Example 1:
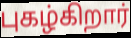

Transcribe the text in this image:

புகழ்கிறார்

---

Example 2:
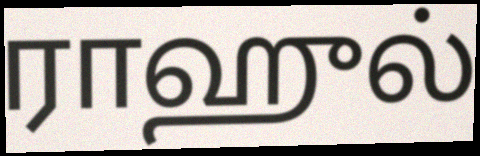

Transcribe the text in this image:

ராஹுல்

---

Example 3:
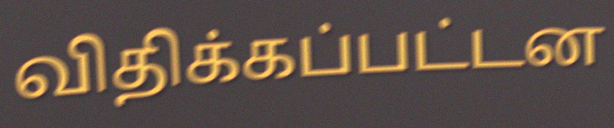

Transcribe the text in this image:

விதிக்கப்பட்டன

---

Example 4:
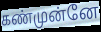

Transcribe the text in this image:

கண்முன்னே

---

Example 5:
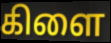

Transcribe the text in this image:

கிளை